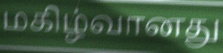
மகிழ்வானது